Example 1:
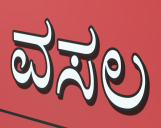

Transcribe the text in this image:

ವಸಲ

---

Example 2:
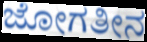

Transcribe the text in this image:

ಜೋಗತೀನ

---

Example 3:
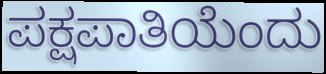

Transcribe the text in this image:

ಪಕ್ಷಪಾತಿಯೆಂದು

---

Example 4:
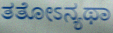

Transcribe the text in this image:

ತತೋಽನ್ಯಥಾ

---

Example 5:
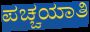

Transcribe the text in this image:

ಪಚ್ಚಯಾತಿ